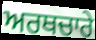
ਅਰਥਚਾਰੇ